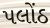
પલોંઠ